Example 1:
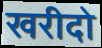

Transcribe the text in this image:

खरीदो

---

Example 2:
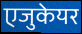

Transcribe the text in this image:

एजुकेयर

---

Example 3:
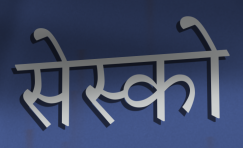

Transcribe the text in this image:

सेस्को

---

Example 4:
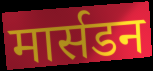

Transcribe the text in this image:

मार्सडन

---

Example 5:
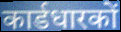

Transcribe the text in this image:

कार्डधारकों